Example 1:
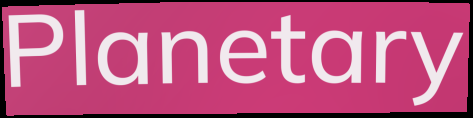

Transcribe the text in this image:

Planetary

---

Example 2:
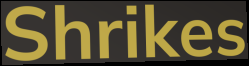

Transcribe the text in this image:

Shrikes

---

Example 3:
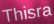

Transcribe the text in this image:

Thisra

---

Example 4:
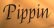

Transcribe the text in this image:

Pippin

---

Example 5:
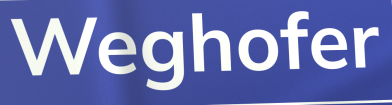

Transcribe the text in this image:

Weghofer